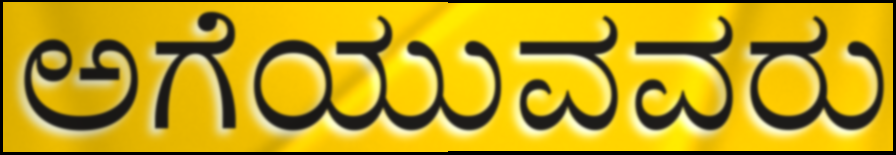
ಅಗೆಯುವವರು